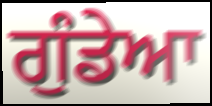
ਗੁੰਡੇਆ